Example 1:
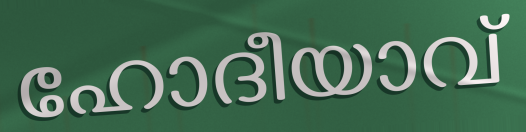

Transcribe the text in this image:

ഹോദീയാവ്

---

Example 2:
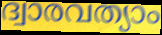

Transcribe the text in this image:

ദ്വാരവത്യാം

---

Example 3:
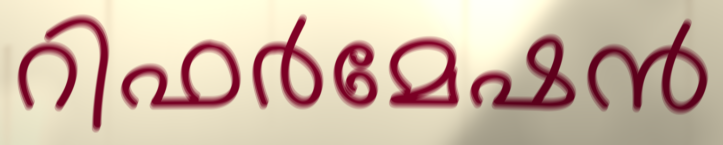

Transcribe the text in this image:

റിഫർമേഷൻ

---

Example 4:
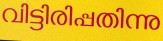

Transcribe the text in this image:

വിട്ടിരിപ്പതിന്നു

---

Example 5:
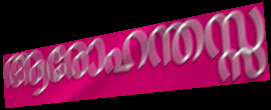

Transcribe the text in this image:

ആരോഹന്തസ്സ